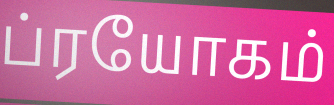
ப்ரயோகம்